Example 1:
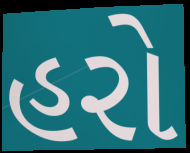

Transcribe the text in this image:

હરો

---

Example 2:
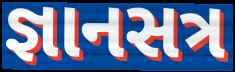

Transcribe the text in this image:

જ્ઞાનસત્ર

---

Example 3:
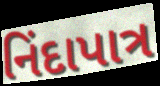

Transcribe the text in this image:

નિંદાપાત્ર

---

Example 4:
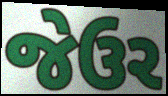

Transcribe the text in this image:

જેઉર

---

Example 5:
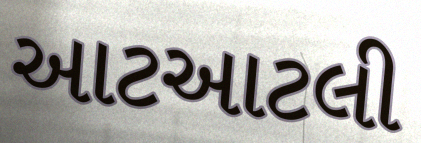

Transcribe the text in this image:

આટઆટલી